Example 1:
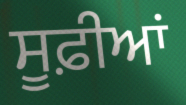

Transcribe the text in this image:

ਸੂਫ਼ੀਆਂ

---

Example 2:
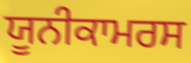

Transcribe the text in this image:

ਯੂਨੀਕਾਮਰਸ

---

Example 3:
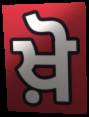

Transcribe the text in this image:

ਖ਼ੋ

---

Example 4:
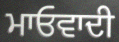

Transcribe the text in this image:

ਮਾਓਵਾਦੀ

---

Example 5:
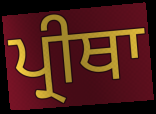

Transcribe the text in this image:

ਪ੍ਰੀਥਾ